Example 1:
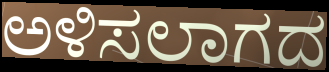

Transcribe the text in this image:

ಅಳಿಸಲಾಗದ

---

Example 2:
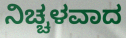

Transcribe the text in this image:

ನಿಚ್ಚಳವಾದ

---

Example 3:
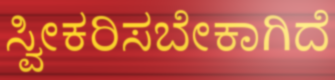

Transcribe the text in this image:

ಸ್ವೀಕರಿಸಬೇಕಾಗಿದೆ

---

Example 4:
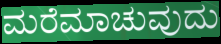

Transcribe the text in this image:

ಮರೆಮಾಚುವುದು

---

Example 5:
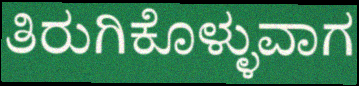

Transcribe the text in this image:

ತಿರುಗಿಕೊಳ್ಳುವಾಗ